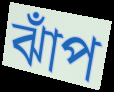
ঝাঁপ